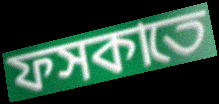
ফসকাতে